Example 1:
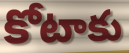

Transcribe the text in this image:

కోటాకు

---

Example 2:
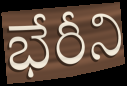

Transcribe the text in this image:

భేరీని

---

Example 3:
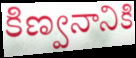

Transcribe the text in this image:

కిణ్వనానికి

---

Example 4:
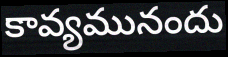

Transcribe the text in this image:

కావ్యమునందు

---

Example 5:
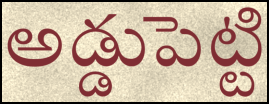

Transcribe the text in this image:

అడ్డుపెట్టి